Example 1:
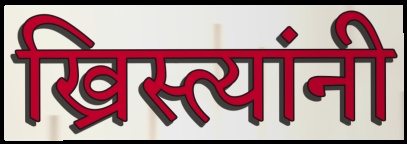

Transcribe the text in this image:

ख्रिस्त्यांनी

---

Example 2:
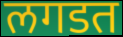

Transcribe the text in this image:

लगडत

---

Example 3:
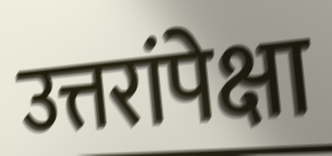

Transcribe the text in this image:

उत्तरांपेक्षा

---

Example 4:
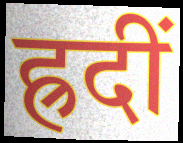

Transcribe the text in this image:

ह्रदीं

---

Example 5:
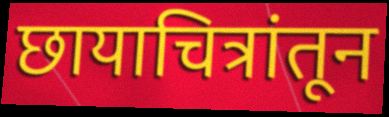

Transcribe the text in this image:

छायाचित्रांतून